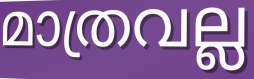
മാത്രവല്ല